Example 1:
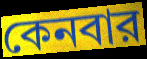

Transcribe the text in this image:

কেনবার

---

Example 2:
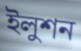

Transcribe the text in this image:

ইলুশন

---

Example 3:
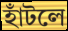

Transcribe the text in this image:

হাঁটলে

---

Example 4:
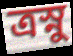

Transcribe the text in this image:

ত্রস্নু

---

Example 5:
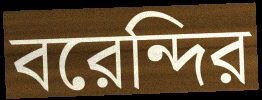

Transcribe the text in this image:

বরেন্দির